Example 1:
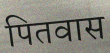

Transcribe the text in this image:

पितवास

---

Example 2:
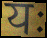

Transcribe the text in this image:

यः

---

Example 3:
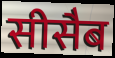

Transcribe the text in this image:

सीसैब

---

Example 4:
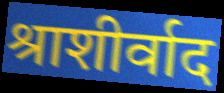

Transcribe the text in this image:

श्राशीर्वाद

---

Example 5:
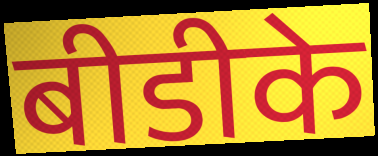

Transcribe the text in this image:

बीडीके